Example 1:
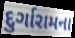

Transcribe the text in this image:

દુર્ગારામના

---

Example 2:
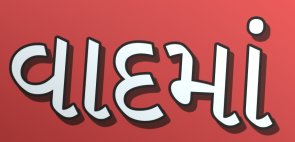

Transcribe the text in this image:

વાદમાં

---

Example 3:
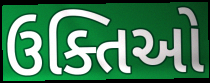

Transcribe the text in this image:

ઉક્તિઓ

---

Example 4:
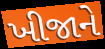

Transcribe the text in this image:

ખીજાને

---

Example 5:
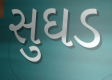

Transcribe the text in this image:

સુઘડ